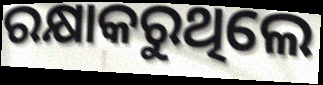
ରକ୍ଷାକରୁଥିଲେ